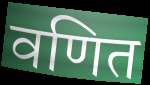
वणित